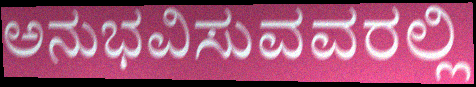
ಅನುಭವಿಸುವವರಲ್ಲಿ